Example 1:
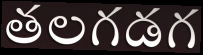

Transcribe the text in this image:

తలగడగ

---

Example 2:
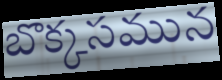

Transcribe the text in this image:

బొక్కసమున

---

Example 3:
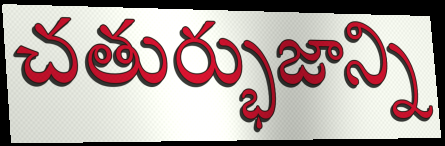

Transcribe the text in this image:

చతుర్భుజాన్ని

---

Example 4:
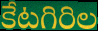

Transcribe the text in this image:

కేటగిరిల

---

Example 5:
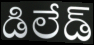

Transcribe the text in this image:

డిలేడ్